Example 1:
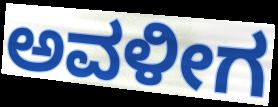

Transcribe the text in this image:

ಅವಳೀಗ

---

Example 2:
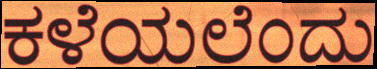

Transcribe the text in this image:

ಕಳೆಯಲೆಂದು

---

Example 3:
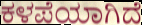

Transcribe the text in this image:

ಕಳಪೆಯಾಗಿದೆ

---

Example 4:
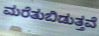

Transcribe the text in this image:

ಮರೆತುಬಿಡುತ್ತವೆ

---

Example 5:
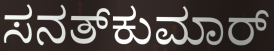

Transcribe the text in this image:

ಸನತ್‌ಕುಮಾರ್